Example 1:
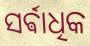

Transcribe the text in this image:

ସର୍ଵାଧିକ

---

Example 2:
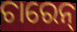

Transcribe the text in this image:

ଚାରେନ୍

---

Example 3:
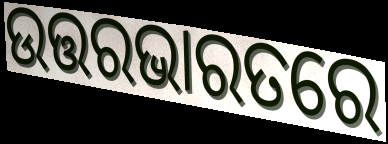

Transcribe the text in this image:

ଉତ୍ତରଭାରତରେ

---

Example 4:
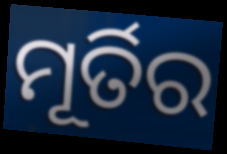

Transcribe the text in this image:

ମୂର୍ତିର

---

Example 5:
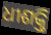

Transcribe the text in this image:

ଧୀଶକ୍ତି